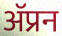
ॲप्रन